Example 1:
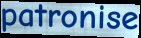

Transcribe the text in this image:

patronise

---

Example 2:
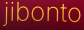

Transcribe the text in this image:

jibonto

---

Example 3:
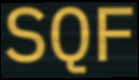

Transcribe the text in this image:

SQF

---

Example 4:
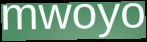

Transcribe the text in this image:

mwoyo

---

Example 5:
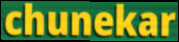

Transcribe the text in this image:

chunekar